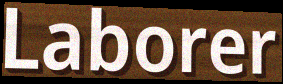
Laborer